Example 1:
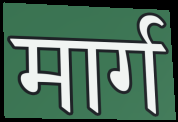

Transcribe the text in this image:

मार्ग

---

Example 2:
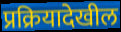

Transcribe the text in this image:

प्रक्रियादेखील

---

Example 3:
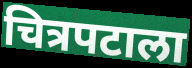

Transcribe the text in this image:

चित्रपटाला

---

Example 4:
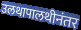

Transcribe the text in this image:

उलथापालथीनंतर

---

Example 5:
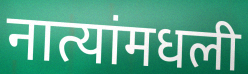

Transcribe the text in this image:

नात्यांमधली